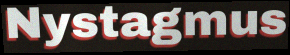
Nystagmus